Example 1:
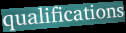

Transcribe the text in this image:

qualifications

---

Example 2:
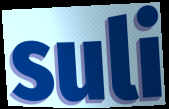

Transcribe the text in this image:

suli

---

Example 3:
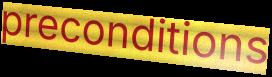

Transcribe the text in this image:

preconditions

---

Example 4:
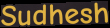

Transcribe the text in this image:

Sudhesh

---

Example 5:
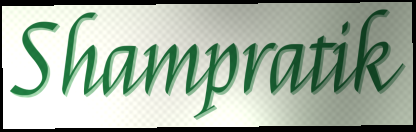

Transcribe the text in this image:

Shampratik